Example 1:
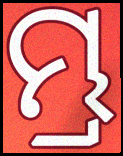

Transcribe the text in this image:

ମ୍ଭ୍ର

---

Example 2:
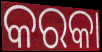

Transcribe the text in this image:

କରକା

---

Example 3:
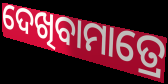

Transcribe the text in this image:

ଦେଖିବାମାତ୍ରେ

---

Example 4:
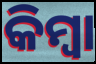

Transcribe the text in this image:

କିମ୍ବା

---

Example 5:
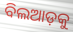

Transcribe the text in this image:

ବିଲଆଡ଼କୁ